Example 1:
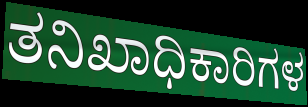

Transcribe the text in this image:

ತನಿಖಾಧಿಕಾರಿಗಳ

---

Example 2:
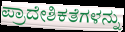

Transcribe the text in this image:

ಪ್ರಾದೇಶಿಕತೆಗಳನ್ನು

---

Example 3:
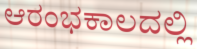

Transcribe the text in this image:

ಆರಂಭಕಾಲದಲ್ಲಿ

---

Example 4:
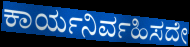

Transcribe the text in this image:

ಕಾರ್ಯನಿರ್ವಹಿಸದೇ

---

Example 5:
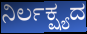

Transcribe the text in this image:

ನಿರ್ಲಕ್ಷ್ಯದ